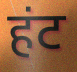
हंट